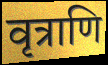
वृत्राणि